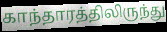
காந்தாரத்திலிருந்து